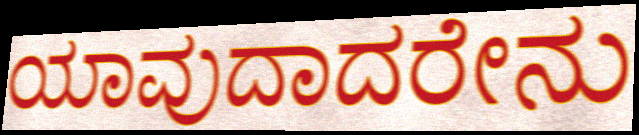
ಯಾವುದಾದರೇನು